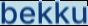
bekku